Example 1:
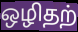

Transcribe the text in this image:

ஒழிதற்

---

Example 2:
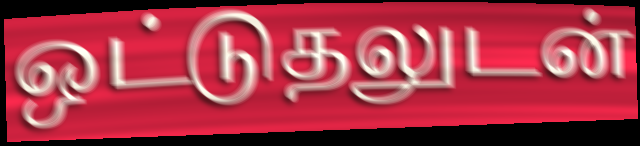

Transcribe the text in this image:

ஒட்டுதலுடன்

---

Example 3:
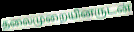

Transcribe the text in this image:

தலைமுறையினருடன்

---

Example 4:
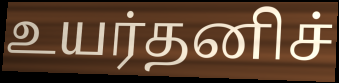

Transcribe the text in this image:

உயர்தனிச்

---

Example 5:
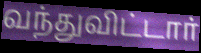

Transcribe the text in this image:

வந்துவிட்டார்